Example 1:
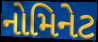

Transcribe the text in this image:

નોમિનેટ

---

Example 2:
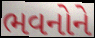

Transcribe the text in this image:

ભવનોને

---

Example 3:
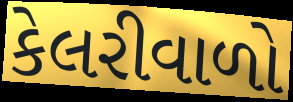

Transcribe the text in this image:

કેલરીવાળો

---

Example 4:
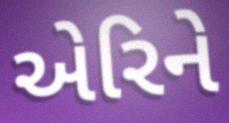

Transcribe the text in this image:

એરિને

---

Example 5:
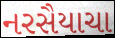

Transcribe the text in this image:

નરસૈયાચા